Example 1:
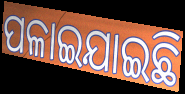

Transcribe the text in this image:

ପଳାଇଯାଇଛି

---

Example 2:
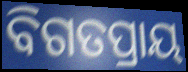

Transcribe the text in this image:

ବିଗତପ୍ରାୟ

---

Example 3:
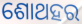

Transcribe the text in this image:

ଶୋଥହର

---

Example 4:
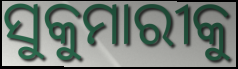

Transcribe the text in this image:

ସୁକୁମାରୀକୁ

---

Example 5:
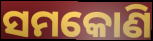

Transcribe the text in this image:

ସମକୋଣି